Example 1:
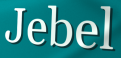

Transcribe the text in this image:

Jebel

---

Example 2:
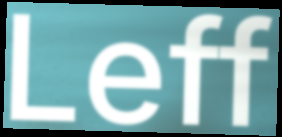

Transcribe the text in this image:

Leff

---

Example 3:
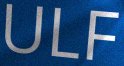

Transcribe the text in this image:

ULF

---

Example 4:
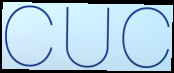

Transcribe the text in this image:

CUC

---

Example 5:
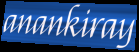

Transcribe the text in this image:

anankiray